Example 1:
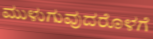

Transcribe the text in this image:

ಮುಳುಗುವುದರೊಳಗೆ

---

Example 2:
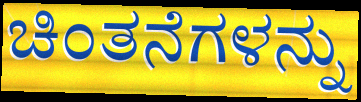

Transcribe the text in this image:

ಚಿಂತನೆಗಳನ್ನು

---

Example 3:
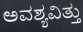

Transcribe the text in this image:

ಅವಶ್ಯವಿತ್ತು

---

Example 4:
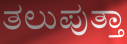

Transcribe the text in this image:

ತಲುಪುತ್ತಾ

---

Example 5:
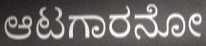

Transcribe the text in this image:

ಆಟಗಾರನೋ